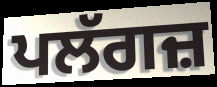
ਪਲੱਗਜ਼